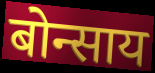
बोन्साय